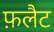
फ़लैट